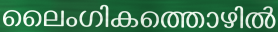
ലൈംഗികത്തൊഴിൽ